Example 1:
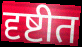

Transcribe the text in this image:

दृष्टीत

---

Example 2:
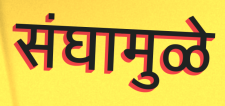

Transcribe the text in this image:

संघामुळे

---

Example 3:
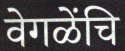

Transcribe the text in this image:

वेगळेंचि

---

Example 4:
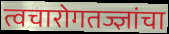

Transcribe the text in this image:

त्वचारोगतज्ज्ञांचा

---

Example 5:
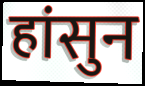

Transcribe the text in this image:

हांसुन